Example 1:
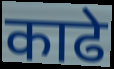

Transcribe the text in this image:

काढे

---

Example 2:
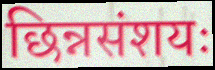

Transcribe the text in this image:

छिन्नसंशयः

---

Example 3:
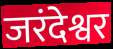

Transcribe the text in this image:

जरंदेश्वर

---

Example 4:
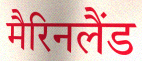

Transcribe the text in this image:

मैरिनलैंड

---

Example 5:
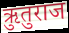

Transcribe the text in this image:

ऋुतुराज